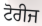
ਟੋਰੀਜ